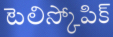
టెలిస్కోపిక్